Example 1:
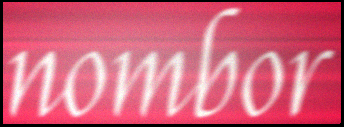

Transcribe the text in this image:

nombor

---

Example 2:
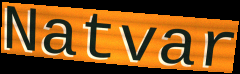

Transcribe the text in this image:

Natvar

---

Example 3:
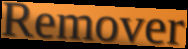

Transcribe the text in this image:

Remover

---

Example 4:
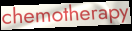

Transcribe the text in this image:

chemotherapy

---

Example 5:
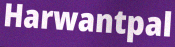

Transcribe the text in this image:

Harwantpal